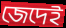
জেদেই